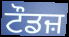
ਟੌਡਜ਼